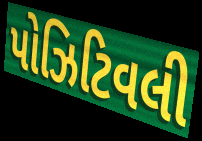
પોઝિટિવલી